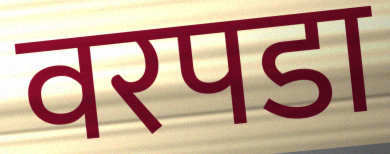
वरपडा